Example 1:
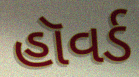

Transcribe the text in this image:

હૉવર્ડ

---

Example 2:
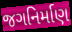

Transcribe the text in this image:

જગનિર્માણ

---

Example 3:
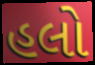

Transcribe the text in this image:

હલો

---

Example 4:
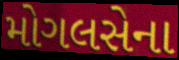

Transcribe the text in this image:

મોગલસેના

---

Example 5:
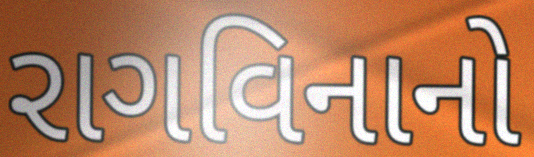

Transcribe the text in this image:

રાગવિનાનો